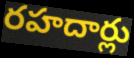
రహదార్లు